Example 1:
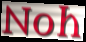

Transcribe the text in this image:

Noh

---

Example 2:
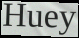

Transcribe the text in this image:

Huey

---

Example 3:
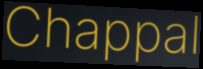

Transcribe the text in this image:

Chappal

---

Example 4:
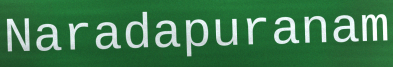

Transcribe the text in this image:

Naradapuranam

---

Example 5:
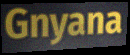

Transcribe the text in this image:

Gnyana